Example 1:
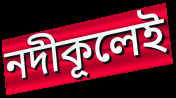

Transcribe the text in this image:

নদীকূলেই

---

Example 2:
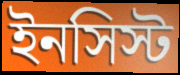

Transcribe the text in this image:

ইনসিস্ট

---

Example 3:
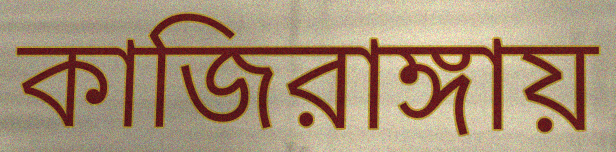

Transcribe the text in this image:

কাজিরাঙ্গায়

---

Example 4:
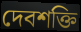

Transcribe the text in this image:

দেবশক্তি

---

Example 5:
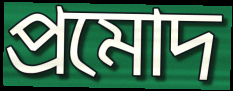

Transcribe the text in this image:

প্রমোদ